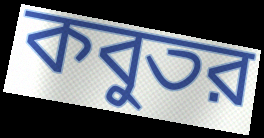
কবুতর